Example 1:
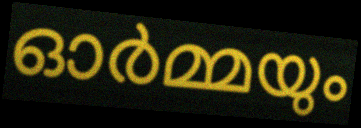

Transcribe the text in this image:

ഓർമ്മയും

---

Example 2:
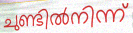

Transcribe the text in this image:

ചുണ്ടിൽനിന്ന്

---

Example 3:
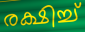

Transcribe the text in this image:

രക്ഷിച്ച്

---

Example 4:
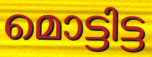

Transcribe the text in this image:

മൊട്ടിട്ട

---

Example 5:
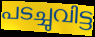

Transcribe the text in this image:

പടച്ചുവിട്ട